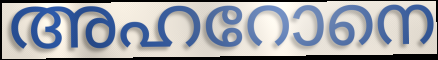
അഹറോനെ